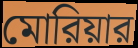
মোরিয়ার